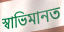
স্বাভিমানত